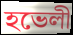
হভেলী